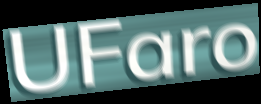
UFaro